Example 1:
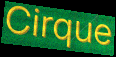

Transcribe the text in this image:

Cirque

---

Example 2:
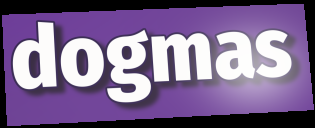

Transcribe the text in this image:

dogmas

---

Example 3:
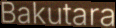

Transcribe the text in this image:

Bakutara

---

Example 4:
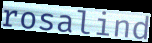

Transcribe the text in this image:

rosalind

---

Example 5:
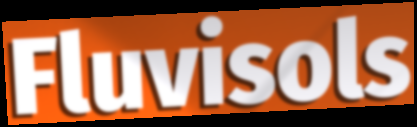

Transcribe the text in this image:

Fluvisols